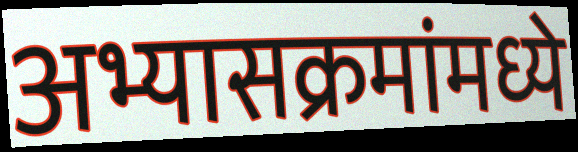
अभ्यासक्रमांमध्ये